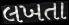
લખતા